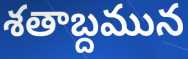
శతాబ్దమున